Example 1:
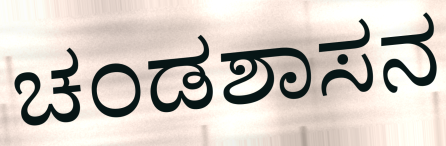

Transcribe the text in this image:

ಚಂಡಶಾಸನ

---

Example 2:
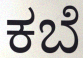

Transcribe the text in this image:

ಕಬೆ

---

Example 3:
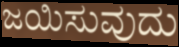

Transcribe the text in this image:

ಜಯಿಸುವುದು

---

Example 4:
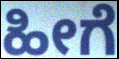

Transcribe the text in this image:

ಹೀಗೆ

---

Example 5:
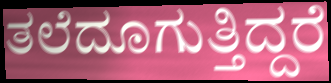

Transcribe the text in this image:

ತಲೆದೂಗುತ್ತಿದ್ದರೆ